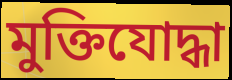
মুক্তিযোদ্ধা